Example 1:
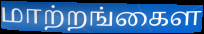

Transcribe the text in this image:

மாற்றங்கைள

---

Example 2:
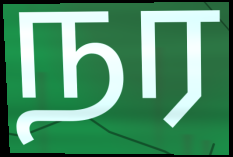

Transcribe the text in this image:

நர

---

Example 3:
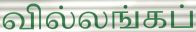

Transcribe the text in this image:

வில்லங்கப்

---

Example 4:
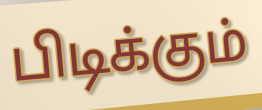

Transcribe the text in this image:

பிடிக்கும்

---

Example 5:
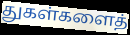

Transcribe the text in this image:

துகள்களைத்